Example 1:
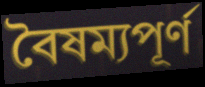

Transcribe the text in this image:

বৈষম্যপূৰ্ণ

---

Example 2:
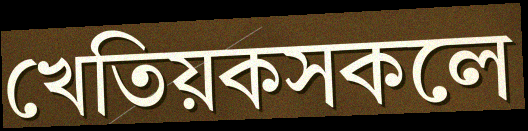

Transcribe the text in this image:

খেতিয়কসকলে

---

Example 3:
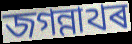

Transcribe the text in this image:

জগন্নাথৰ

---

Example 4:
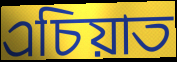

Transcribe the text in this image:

এচিয়াত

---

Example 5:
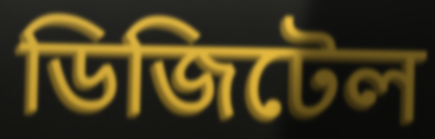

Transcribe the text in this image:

ডিজিটেল